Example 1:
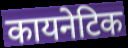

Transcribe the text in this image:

कायनेटिक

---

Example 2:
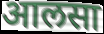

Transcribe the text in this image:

आलसा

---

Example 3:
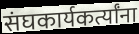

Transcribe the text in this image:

संघकार्यकर्त्यांना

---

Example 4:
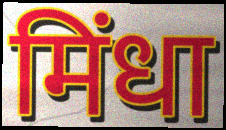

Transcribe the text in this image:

मिंधा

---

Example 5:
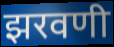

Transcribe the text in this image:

झरवणी